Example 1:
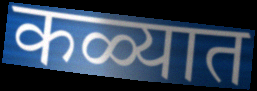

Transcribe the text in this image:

कळ्यात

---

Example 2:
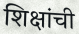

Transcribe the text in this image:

शिक्षांची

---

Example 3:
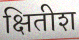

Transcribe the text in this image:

क्षितीश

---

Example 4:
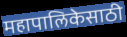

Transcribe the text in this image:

महापालिकेसाठी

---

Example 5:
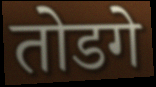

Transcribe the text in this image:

तोडगे